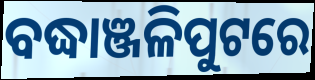
ବଦ୍ଧାଞ୍ଜଳିପୁଟରେ